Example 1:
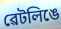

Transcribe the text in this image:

ৱেটলিঙে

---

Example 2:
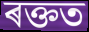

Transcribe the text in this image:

ৰক্তত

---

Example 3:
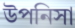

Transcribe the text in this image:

উপনিসা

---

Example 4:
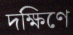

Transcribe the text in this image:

দক্ষিণে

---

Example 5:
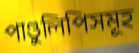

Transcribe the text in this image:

পাণ্ডুলিপিসমূহ